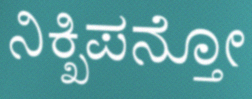
ನಿಕ್ಖಿಪನ್ತೋ